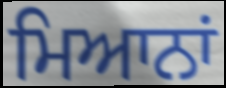
ਮਿਆਨਾਂ